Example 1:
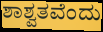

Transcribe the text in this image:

ಶಾಶ್ವತವೆಂದು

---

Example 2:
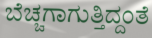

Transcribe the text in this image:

ಬೆಚ್ಚಗಾಗುತ್ತಿದ್ದಂತೆ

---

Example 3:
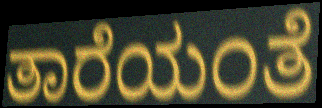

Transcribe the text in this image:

ತಾರೆಯಂತೆ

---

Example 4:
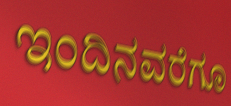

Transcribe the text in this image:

ಇಂದಿನವರೆಗೂ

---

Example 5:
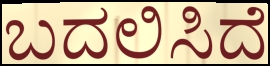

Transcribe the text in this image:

ಬದಲಿಸಿದೆ